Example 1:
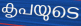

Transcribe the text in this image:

കൃപയുടെ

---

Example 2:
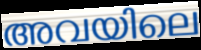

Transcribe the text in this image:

അവയിലെ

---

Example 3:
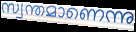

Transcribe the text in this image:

സ്വന്തമാണെന്നു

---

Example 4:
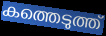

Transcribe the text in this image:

കത്തെടുത്ത്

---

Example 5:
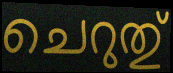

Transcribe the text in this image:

ചെറുതു്